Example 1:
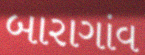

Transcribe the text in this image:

બારાગાંવ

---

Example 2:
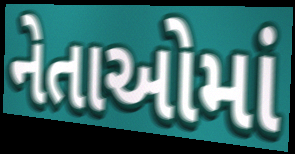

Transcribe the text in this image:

નેતાઓમાં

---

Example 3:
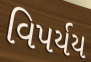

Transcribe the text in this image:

વિપર્યય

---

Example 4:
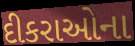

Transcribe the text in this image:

દીકરાઓના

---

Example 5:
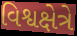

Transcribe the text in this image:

વિશ્વક્ષેત્રે